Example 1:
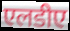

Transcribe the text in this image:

एलडीए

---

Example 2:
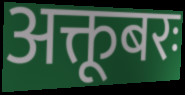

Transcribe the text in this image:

अक्तूबरः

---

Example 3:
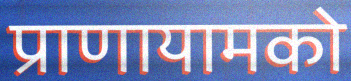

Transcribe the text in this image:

प्राणायामको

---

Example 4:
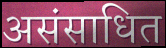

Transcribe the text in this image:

असंसाधित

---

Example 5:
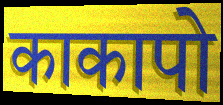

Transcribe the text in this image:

काकापो